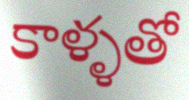
కాళ్ళతో